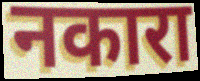
नकारा